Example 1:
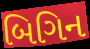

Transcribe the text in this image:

બિગિન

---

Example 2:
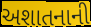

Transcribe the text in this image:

અશાતનાની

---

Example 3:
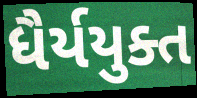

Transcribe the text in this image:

ધૈર્યયુક્ત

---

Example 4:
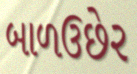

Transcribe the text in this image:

બાળઉછેર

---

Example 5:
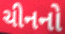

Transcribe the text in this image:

ચીનનો